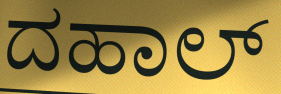
ದಹಾಲ್